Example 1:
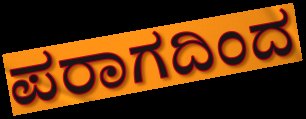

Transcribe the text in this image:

ಪರಾಗದಿಂದ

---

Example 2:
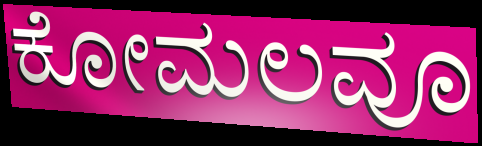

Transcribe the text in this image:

ಕೋಮಲವೂ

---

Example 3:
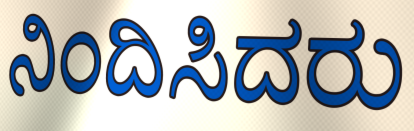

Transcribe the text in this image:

ನಿಂದಿಸಿದರು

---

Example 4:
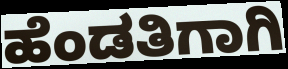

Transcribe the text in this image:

ಹೆಂಡತಿಗಾಗಿ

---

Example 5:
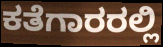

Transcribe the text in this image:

ಕತೆಗಾರರಲ್ಲಿ